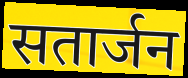
सतार्जन